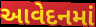
આવેદનમાં